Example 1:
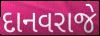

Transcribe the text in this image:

દાનવરાજે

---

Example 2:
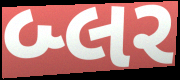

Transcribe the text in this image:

બ્લર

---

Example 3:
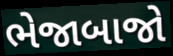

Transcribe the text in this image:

ભેજાબાજો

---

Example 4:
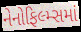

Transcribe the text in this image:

નેનોફિલ્મ્સમાં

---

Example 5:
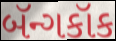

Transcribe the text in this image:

બૅન્ગકૉક